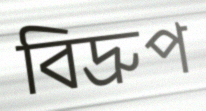
বিদ্রুপ